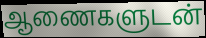
ஆணைகளுடன்